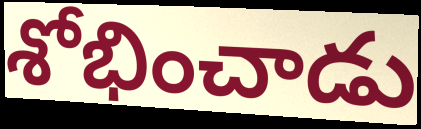
శోభించాడు